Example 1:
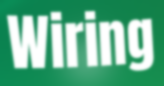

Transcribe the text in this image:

Wiring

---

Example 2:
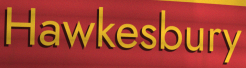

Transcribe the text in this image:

Hawkesbury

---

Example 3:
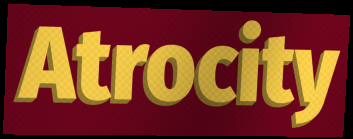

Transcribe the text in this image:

Atrocity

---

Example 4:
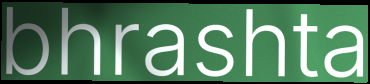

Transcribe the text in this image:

bhrashta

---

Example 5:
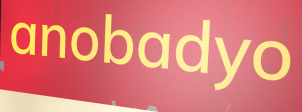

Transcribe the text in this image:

anobadyo